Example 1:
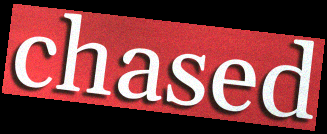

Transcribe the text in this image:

chased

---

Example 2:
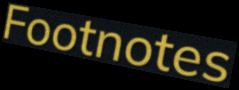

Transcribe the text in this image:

Footnotes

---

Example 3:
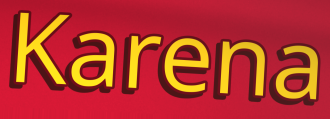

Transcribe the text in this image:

Karena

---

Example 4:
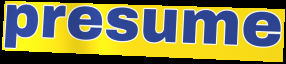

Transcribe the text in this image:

presume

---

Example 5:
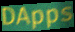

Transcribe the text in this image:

DApps